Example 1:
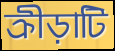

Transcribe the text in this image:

ক্রীড়াটি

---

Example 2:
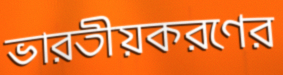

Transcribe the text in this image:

ভারতীয়করণের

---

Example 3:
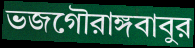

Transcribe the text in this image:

ভজগৌরাঙ্গবাবুর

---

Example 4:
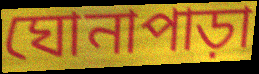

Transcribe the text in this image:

ঘোনাপাড়া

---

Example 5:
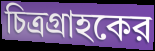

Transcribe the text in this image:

চিত্রগ্রাহকের